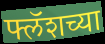
फ्लॅशच्या